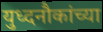
युध्दनौकांच्या